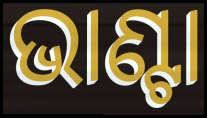
ଭାଣ୍ଟା